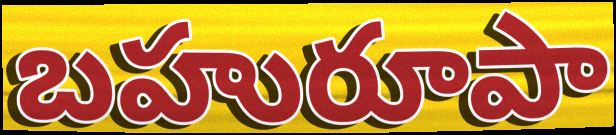
బహురూపా